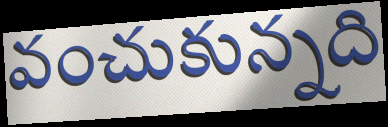
వంచుకున్నది